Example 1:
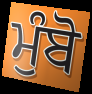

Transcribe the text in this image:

ਮੁੰਬੋ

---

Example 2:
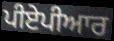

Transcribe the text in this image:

ਪੀਏਪੀਆਰ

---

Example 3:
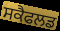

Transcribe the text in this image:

ਸਕੈਫਲਡ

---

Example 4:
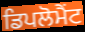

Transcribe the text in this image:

ਡਿਪਲੋਮੈਂਟ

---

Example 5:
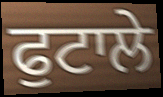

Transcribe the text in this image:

ਫੁਟਾਲੇ